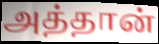
அத்தான்